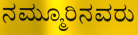
ನಮ್ಮೂರಿನವರು